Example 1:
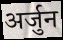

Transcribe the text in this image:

अर्जुन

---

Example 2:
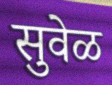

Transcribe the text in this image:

सुवेळ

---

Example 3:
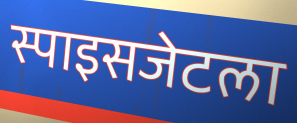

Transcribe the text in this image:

स्पाइसजेटला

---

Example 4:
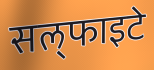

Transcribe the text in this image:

सल्फाइटे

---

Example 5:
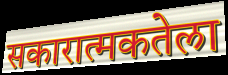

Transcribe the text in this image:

सकारात्मकतेला